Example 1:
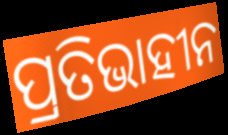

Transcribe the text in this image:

ପ୍ରତିଭାହୀନ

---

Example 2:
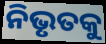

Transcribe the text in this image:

ନିଭୃତକୁ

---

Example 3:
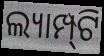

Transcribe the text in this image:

ଲ୍ୟାମ୍ପ୍‍ଟି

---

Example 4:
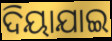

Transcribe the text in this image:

ଦିୟାଯାଇ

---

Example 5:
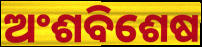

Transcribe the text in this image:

ଅଂଶବିଶେଷ